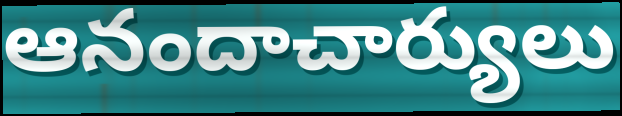
ఆనందాచార్యులు